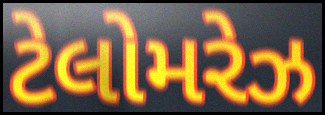
ટેલોમરેઝ